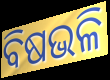
ବିଷଭଳି